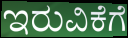
ಇರುವಿಕೆಗೆ